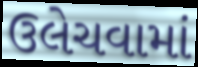
ઉલેચવામાં